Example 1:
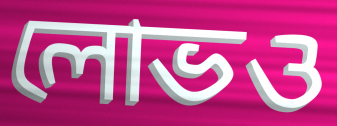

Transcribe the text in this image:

লোভও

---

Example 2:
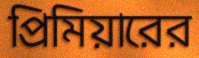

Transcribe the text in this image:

প্রিমিয়ারের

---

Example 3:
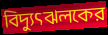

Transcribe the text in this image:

বিদ্যুৎঝলকের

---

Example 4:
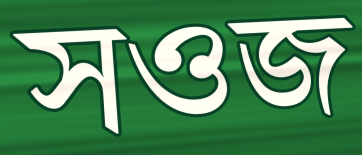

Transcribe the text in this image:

সওজ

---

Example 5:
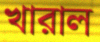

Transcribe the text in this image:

খারাল